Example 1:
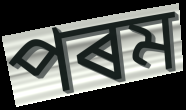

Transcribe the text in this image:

পৰম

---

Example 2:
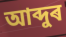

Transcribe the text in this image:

আব্দুৰ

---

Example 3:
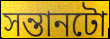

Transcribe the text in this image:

সন্তানটো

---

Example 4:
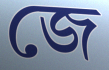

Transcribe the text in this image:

জে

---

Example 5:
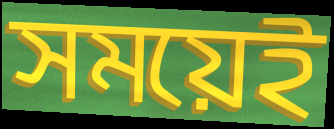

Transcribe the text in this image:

সময়েই